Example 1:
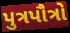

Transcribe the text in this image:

પુત્રપૌત્રો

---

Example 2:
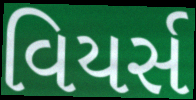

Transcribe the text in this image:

વિયર્સ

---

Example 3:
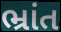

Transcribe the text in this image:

ભ્રાંત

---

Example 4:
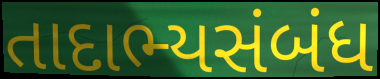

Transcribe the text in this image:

તાદાભ્યસંબંધ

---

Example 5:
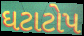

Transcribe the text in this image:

ઘટાટોપ